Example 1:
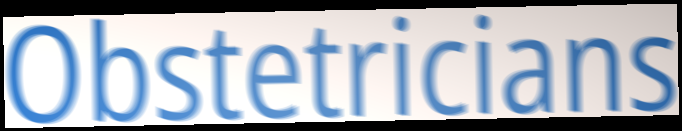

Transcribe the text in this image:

Obstetricians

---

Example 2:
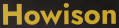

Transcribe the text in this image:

Howison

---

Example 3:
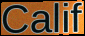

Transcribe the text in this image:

Calif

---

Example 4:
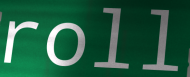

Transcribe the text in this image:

roll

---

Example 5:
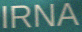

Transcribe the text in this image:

IRNA